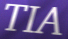
TIA